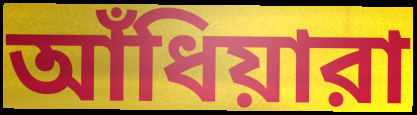
আঁধিয়ারা